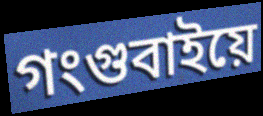
গংগুবাইয়ে